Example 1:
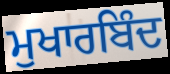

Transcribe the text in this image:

ਮੁਖਾਰਬਿੰਦ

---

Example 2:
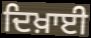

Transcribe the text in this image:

ਦਿਖ਼ਾਈ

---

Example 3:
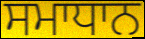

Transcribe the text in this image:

ਸਮਾਧਾਨ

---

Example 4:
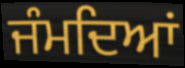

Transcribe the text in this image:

ਜੰਮਦਿਆਂ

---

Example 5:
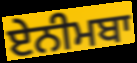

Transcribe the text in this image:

ਏਨੀਮਬਾ